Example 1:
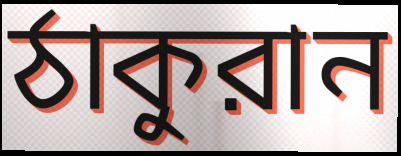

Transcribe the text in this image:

ঠাকুরান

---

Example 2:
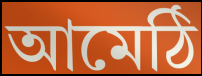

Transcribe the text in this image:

আমেঠি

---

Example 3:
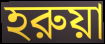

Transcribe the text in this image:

হরুয়া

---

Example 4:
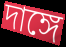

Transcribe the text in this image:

দাঙ্গে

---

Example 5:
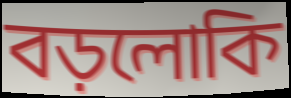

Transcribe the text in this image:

বড়লোকি